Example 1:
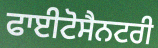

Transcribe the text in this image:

ਫਾਈਟੋਸੈਨਟਰੀ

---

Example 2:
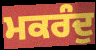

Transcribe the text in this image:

ਮਕਰੰਦੁ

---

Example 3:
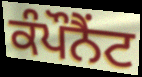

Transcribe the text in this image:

ਕੰਪੌਨੈਂਟ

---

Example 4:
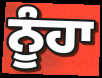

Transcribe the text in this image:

ਨੂੰਹਾ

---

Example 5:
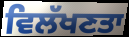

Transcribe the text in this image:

ਵਿਲੱਖਣਤਾ